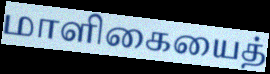
மாளிகையைத்